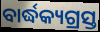
ବାର୍ଦ୍ଧକ୍ୟଗ୍ରସ୍ତ